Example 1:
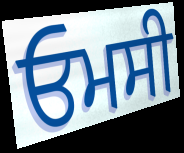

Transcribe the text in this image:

ਓਮਸੀ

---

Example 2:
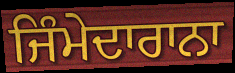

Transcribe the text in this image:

ਜਿੰਮੇਦਾਰਾਨਾ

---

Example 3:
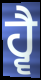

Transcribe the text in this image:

ਹ੍ਵੈ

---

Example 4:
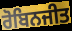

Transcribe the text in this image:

ਰੋਬਿਨਜੀਤ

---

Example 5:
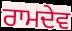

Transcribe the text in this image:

ਰਾਮਦੇਵ